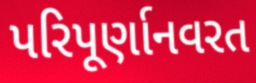
પરિપૂર્ણાનવરત